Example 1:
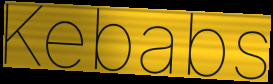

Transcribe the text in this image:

Kebabs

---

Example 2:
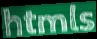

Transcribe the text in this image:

htmls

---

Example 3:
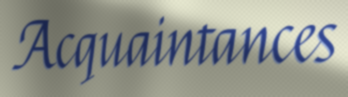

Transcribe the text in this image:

Acquaintances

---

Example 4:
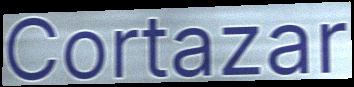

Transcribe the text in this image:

Cortazar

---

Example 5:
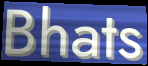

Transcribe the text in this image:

Bhats